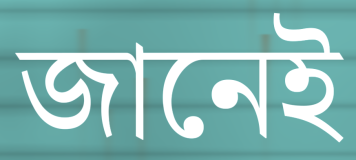
জানেই